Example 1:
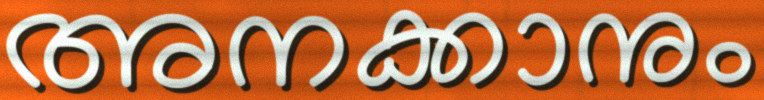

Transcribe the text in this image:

അനക്കാനും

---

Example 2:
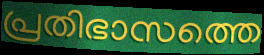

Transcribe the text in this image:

പ്രതിഭാസത്തെ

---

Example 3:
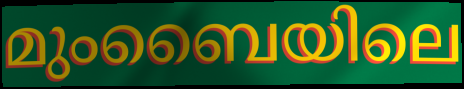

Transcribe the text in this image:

മുംബൈയിലെ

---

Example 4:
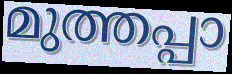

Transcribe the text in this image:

മുത്തപ്പാ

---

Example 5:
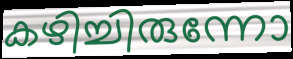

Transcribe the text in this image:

കഴിച്ചിരുന്നോ